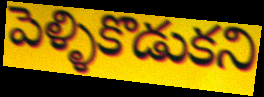
పెళ్ళికొడుకని